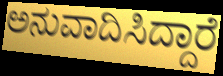
ಅನುವಾದಿಸಿದ್ದಾರೆ